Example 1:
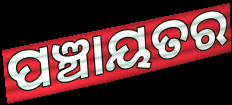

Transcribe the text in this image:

ପଞ୍ଚାୟତର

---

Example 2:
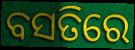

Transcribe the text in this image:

ବସତିରେ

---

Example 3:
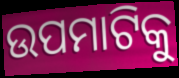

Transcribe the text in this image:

ଉପମାଟିକୁ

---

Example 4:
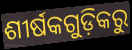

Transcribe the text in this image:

ଶୀର୍ଷକଗୁଡ଼ିକରୁ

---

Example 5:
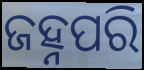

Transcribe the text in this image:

ଜହ୍ନପରି